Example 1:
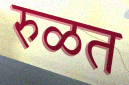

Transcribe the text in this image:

रुळत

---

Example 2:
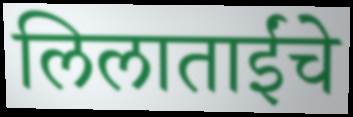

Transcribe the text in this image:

लिलाताईंचे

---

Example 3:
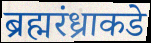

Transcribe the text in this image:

ब्रह्मरंध्राकडे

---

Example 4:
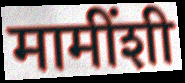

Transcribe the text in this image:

मामींशी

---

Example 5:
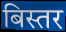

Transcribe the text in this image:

बिस्तर